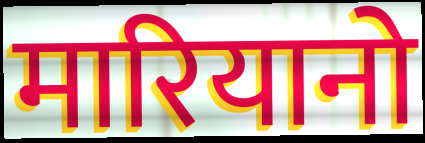
मारियानो